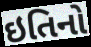
ઇતિનો